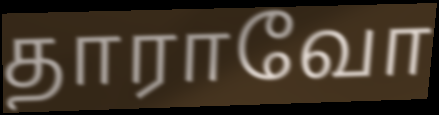
தாராவோ